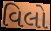
વિલો